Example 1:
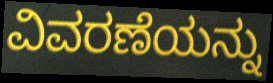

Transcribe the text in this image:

ವಿವರಣೆಯನ್ನು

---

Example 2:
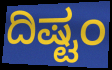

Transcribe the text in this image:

ದಿಷ್ಟಂ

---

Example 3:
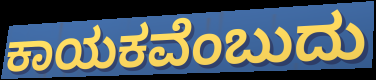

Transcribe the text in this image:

ಕಾಯಕವೆಂಬುದು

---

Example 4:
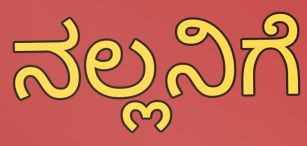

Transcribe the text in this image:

ನಲ್ಲನಿಗೆ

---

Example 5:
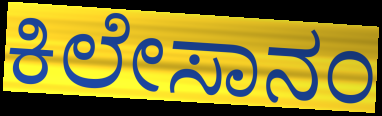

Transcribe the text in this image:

ಕಿಲೇಸಾನಂ